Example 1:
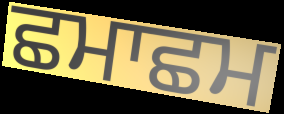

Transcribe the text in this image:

ਛਮਾਛਮ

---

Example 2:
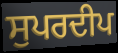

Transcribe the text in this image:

ਸੁਪਰਦੀਪ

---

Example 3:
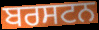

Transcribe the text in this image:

ਬਰਸਟਨ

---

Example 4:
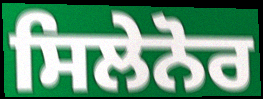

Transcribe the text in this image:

ਸਿਲੇਨੋਰ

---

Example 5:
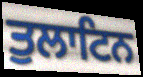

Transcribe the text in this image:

ਤੁਲਾਟਿਨ